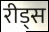
रीड्स